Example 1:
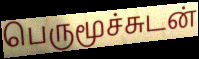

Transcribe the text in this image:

பெருமூச்சுடன்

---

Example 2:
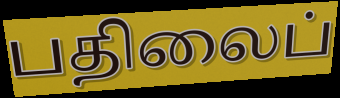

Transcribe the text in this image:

பதிலைப்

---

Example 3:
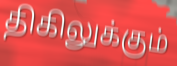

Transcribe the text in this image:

திகிலுக்கும்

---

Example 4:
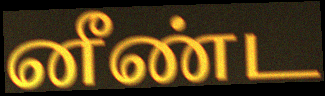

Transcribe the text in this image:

னீண்ட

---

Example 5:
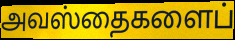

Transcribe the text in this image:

அவஸ்தைகளைப்